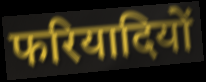
फरियादियों